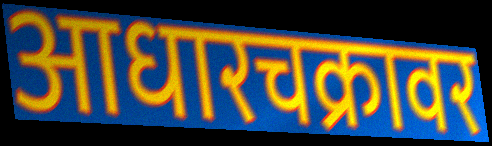
आधारचक्रावर